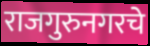
राजगुरुनगरचे